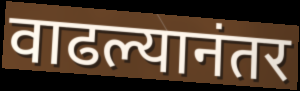
वाढल्यानंतर